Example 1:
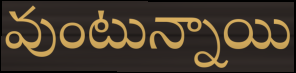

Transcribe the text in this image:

వుంటున్నాయి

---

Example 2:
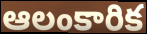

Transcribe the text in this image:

ఆలంకారిక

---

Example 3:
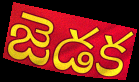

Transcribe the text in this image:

జెడక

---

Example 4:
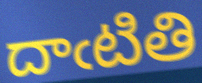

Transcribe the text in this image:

దాఁటితి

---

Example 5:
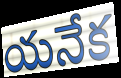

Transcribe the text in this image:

యనేక